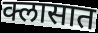
क्लासात